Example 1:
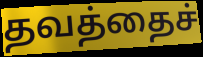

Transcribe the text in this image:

தவத்தைச்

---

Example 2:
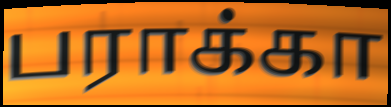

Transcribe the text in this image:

பராக்கா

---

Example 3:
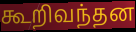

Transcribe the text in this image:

கூறிவந்தன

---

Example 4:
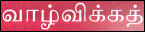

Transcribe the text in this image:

வாழ்விக்கத்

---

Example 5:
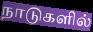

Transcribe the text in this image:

நாடுகளில்